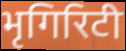
भृगिरिटी